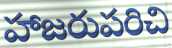
హాజరుపరిచి